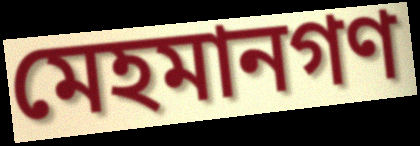
মেহমানগণ